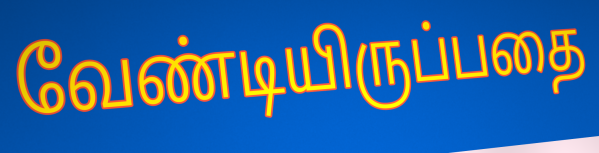
வேண்டியிருப்பதை